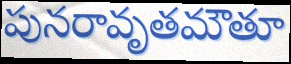
పునరావృతమౌతూ